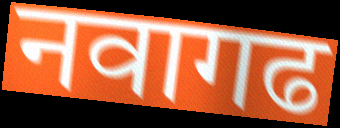
नवागढ